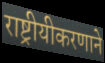
राष्ट्रीयीकरणाने